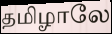
தமிழாலே